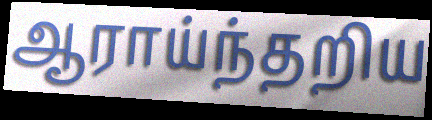
ஆராய்ந்தறிய